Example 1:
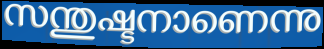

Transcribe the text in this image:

സന്തുഷ്ടനാണെന്നു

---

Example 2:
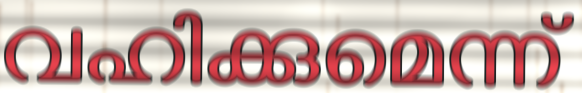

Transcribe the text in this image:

വഹിക്കുമെന്ന്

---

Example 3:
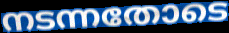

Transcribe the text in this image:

നടന്നതോടെ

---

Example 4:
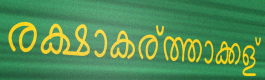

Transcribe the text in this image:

രക്ഷാകര്ത്താക്കള്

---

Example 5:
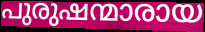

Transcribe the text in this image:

പുരുഷന്മാരായ